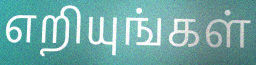
எறியுங்கள்